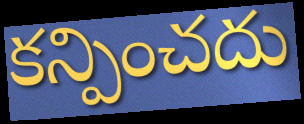
కన్పించదు